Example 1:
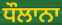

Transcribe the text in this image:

ਧੌਲਾਨਾ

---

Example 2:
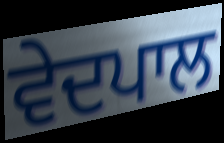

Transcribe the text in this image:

ਵੇਦਪਾਲ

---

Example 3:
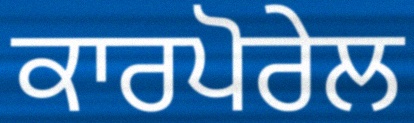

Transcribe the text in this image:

ਕਾਰਪੋਰੇਲ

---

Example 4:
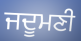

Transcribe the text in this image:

ਜਦੂਮਣੀ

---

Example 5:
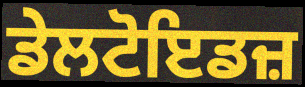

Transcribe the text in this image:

ਡੇਲਟੋਇਡਜ਼